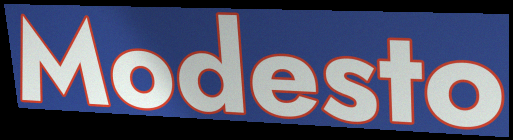
Modesto